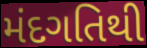
મંદગતિથી